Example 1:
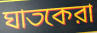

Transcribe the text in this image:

ঘাতকেরা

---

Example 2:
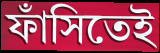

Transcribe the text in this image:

ফাঁসিতেই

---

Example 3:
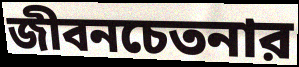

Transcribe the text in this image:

জীবনচেতনার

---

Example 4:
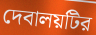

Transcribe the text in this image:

দেবালয়টির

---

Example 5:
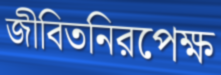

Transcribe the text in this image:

জীবিতনিরপেক্ষ